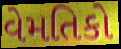
વેમતિકો